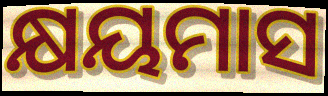
କ୍ଷୟମାସ